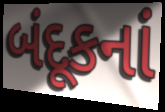
બંદૂકનાં